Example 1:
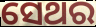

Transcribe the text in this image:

ସେଥର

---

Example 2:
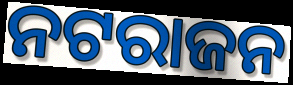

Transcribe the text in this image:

ନଟରାଜନ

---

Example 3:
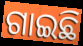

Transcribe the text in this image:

ଗାଇଛି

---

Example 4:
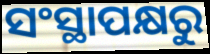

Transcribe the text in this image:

ସଂସ୍ଥାପକ୍ଷରୁ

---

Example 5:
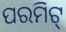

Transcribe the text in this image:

ପରମିଟ୍